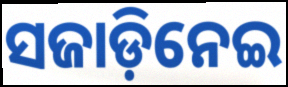
ସଜାଡ଼ିନେଇ